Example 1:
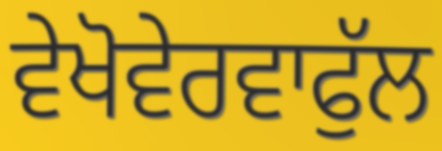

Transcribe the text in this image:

ਵੇਖੋਵੇਰਵਾਫੁੱਲ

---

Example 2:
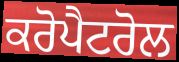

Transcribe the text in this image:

ਕਰੋਪੈਟਰੋਲ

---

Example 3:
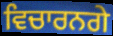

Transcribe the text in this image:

ਵਿਚਾਰਨਗੇ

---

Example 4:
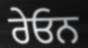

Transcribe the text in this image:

ਰੇਓਨ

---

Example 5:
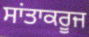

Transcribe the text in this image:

ਸਾਂਤਾਕਰੂਜ